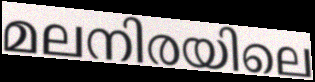
മലനിരയിലെ